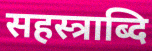
सहस्त्राब्दि